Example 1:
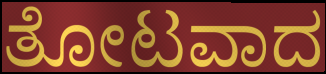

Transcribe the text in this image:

ತೋಟವಾದ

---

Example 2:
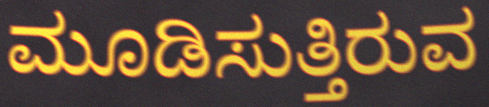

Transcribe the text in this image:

ಮೂಡಿಸುತ್ತಿರುವ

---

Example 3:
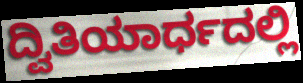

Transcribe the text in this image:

ದ್ವಿತಿಯಾರ್ಧದಲ್ಲಿ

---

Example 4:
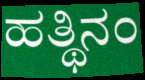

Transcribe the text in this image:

ಹತ್ಥಿನಂ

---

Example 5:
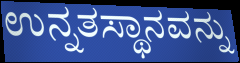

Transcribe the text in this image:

ಉನ್ನತಸ್ಥಾನವನ್ನು